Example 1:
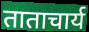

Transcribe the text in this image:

ताताचार्य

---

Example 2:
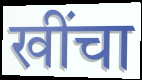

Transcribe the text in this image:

खींचा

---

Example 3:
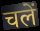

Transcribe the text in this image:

चलें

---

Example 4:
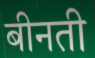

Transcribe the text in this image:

बीनती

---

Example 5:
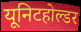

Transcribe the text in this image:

यूनिटहोल्डर